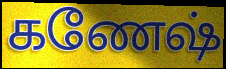
கணேஷ்